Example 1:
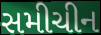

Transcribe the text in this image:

સમીચીન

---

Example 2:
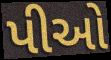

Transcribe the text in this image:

પીઓ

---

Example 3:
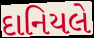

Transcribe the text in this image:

દાનિયલે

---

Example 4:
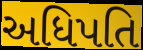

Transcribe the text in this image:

અધિપતિ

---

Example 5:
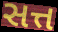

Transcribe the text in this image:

સત્ત